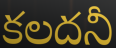
కలదనీ